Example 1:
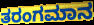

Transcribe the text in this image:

ತರಂಗಮಾನ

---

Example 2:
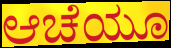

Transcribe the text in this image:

ಆಚೆಯೂ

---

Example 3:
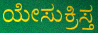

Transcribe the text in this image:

ಯೇಸುಕ್ರಿಸ್ತ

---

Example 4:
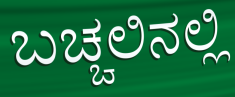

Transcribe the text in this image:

ಬಚ್ಚಲಿನಲ್ಲಿ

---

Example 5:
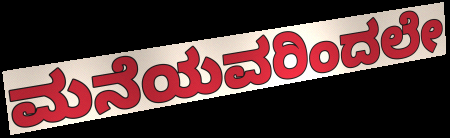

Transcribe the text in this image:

ಮನೆಯವರಿಂದಲೇ